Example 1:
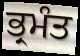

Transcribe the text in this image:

ਭ੍ਰਮੰਤ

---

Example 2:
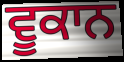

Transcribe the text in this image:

ਵੂਕਾਨ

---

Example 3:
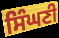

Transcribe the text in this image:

ਸਿੰਘਣੀ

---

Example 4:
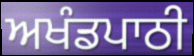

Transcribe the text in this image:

ਅਖੰਡਪਾਠੀ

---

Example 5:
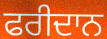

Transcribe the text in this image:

ਫਰੀਦਾਨ